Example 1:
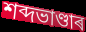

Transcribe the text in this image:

শব্দভাণ্ডাৰ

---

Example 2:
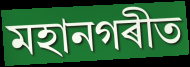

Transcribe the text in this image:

মহানগৰীত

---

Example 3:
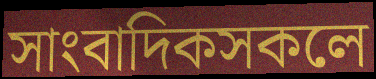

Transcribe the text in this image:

সাংবাদিকসকলে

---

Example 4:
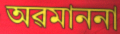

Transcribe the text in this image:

অৱমাননা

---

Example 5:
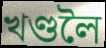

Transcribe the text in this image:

খণ্ডলৈ